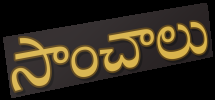
సాంచాలు